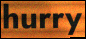
hurry